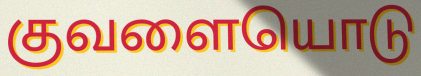
குவளையொடு